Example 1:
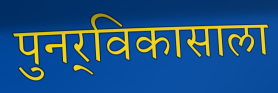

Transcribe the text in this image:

पुनर्विकासाला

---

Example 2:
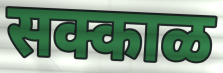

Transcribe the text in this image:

सक्काळ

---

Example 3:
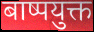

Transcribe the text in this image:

बाष्पयुक्त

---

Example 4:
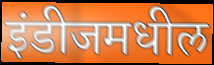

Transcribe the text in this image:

इंडीजमधील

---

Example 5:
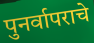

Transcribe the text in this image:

पुनर्वापराचे